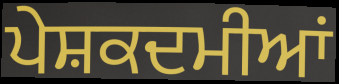
ਪੇਸ਼ਕਦਮੀਆਂ